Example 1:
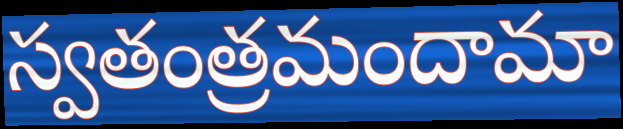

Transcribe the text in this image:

స్వతంత్రమందామా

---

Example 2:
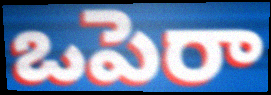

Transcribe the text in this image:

ఒపెరా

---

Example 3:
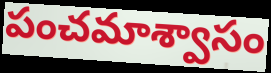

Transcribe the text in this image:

పంచమాశ్వాసం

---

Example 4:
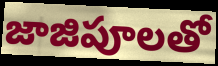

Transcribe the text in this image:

జాజిపూలతో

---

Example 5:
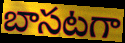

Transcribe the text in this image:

బాసటగా